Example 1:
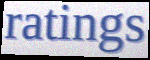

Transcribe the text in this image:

ratings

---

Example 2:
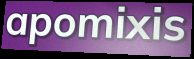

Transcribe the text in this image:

apomixis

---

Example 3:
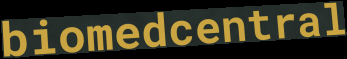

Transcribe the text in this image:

biomedcentral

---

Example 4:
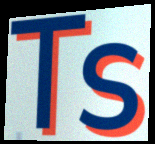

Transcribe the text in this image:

Ts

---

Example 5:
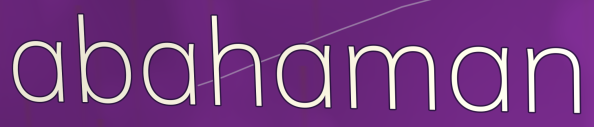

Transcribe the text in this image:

abahaman